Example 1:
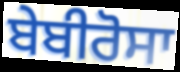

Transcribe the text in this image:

ਬੇਬੀਰੋਸਾ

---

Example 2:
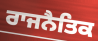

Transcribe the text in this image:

ਰਾਜਨੈਤਿਕ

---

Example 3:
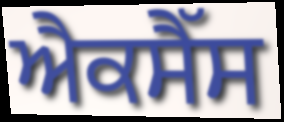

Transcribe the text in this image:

ਐਕਸੈੱਸ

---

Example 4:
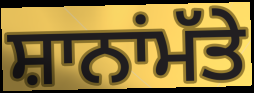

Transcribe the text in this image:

ਸ਼ਾਨਾਂਮੱਤੇ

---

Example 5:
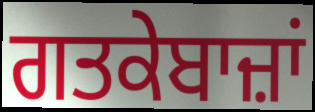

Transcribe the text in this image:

ਗਤਕੇਬਾਜ਼ਾਂ